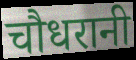
चौधरानी